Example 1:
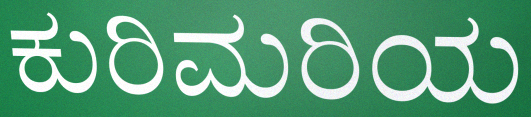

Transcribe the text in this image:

ಕುರಿಮರಿಯ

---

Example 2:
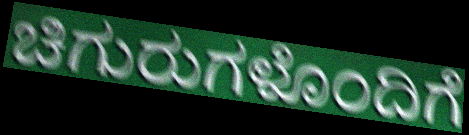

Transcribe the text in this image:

ಚಿಗುರುಗಳೊಂದಿಗೆ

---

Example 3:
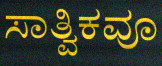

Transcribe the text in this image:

ಸಾತ್ವಿಕವೂ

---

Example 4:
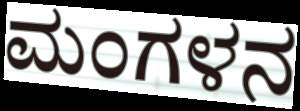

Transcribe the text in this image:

ಮಂಗಳನ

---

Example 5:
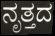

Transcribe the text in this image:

ನೃತ್ತದ